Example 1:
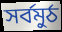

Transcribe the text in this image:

সৰ্বমুঠ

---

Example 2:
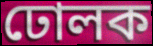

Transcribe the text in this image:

ঢোলক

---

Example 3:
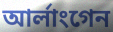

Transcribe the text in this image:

আৰ্লাংগেন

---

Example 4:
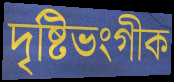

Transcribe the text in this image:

দৃষ্টিভংগীক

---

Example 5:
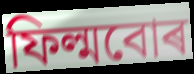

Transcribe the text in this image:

ফিল্মবোৰ